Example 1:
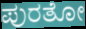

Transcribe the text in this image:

ಪುರತೋ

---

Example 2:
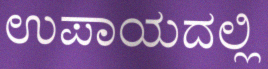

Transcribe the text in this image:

ಉಪಾಯದಲ್ಲಿ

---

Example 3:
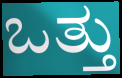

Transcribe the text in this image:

ಒತ್ತು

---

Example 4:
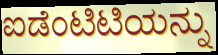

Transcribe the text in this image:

ಐಡೆಂಟಿಟಿಯನ್ನು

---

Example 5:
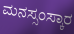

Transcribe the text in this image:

ಮನಸ್ಸಂಸ್ಕಾರ